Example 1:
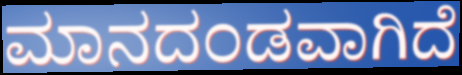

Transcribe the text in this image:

ಮಾನದಂಡವಾಗಿದೆ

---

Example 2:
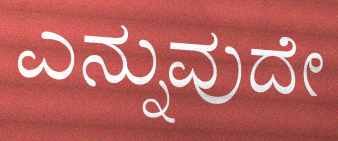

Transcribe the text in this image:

ಎನ್ನುವುದೇ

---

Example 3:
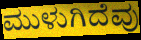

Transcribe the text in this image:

ಮುಳುಗಿದೆವು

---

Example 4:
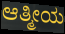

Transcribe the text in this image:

ಆತ್ಮೀಯ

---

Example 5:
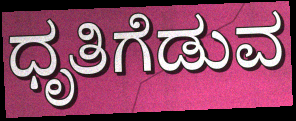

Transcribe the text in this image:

ಧೃತಿಗೆಡುವ